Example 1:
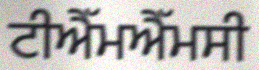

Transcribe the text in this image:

ਟੀਐੱਮਐੱਮਸੀ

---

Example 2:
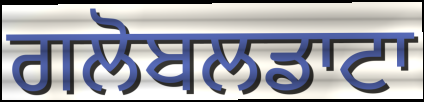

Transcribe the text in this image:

ਗਲੋਬਲਡਾਟਾ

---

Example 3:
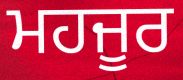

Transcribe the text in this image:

ਮਹਜੂਰ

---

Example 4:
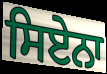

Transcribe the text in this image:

ਸਿਏਨਾ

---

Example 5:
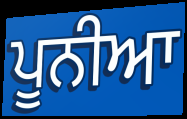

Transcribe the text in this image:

ਪੂਨੀਆ